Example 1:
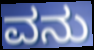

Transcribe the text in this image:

ವನು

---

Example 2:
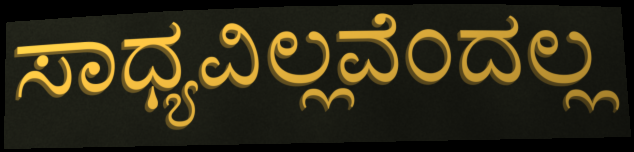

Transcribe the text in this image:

ಸಾಧ್ಯವಿಲ್ಲವೆಂದಲ್ಲ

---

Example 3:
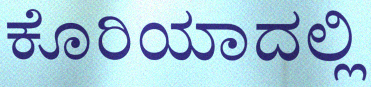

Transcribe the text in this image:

ಕೊರಿಯಾದಲ್ಲಿ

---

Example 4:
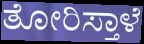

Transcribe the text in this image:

ತೋರಿಸ್ತಾಳೆ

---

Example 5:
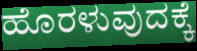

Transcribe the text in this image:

ಹೊರಳುವುದಕ್ಕೆ